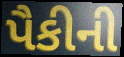
પૈકીની